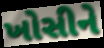
ખોસીને